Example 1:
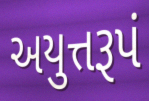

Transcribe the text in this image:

અયુત્તરૂપં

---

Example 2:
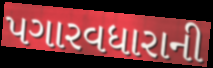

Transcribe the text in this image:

પગારવધારાની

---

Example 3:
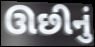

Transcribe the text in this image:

ઊછીનું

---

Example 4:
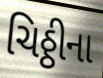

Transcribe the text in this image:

ચિઠ્ઠીના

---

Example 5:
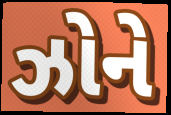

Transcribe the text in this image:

ઝોને